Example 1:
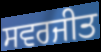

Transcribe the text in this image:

ਸਵਰਜੀਤ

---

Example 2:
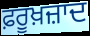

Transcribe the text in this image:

ਫ਼ਰੂਖ਼ਜ਼ਾਦ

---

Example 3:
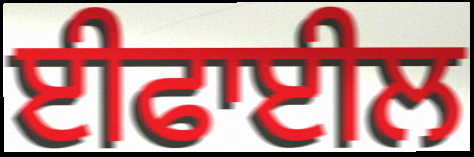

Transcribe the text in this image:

ਈਫਾਈਲ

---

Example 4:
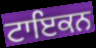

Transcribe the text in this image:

ਟਾਇਕਨ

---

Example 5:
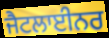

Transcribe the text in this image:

ਜੈਟਲਾਈਨਰ